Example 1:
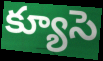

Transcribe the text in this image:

క్యూసె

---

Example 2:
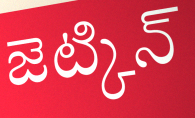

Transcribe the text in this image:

జెట్కిన్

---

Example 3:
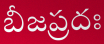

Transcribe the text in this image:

బీజప్రదః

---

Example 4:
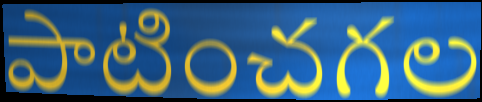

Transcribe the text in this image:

పాటించగల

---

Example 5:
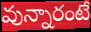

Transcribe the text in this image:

వున్నారంటే